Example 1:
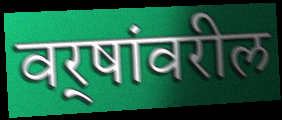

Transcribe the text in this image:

वर्षांवरील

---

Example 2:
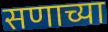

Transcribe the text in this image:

सणाच्या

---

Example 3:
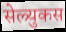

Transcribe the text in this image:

सेल्युकस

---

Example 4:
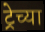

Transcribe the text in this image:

ट्रेच्या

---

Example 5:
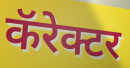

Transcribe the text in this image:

कॅरेक्टर